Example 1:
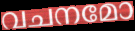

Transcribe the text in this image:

വചനമോ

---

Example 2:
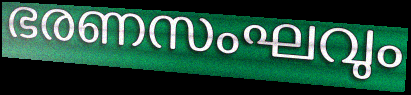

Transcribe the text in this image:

ഭരണസംഘവും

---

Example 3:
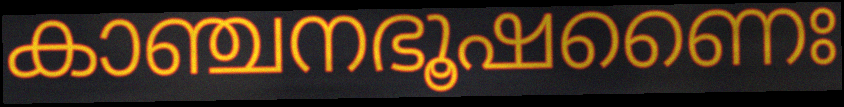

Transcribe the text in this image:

കാഞ്ചനഭൂഷണൈഃ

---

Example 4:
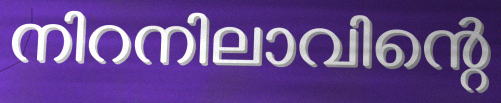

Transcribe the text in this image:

നിറനിലാവിന്റെ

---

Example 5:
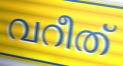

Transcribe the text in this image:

വറീത്